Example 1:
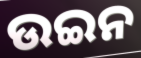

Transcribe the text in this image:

ଉଇନ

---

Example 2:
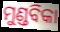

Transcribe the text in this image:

ମୁଣ୍ଡବିକା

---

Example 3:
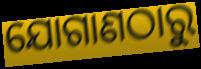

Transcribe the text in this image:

ଯୋଗାଣଠାରୁ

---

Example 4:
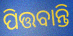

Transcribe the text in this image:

ପିତ୍ତବାନ୍ତି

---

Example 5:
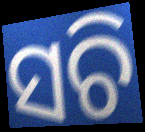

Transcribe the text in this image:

ସଚି